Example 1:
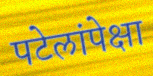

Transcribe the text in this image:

पटेलांपेक्षा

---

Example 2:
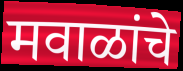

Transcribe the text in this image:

मवाळांचे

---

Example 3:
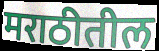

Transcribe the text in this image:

मराठीतील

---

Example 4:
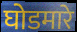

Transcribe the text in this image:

घोडमारे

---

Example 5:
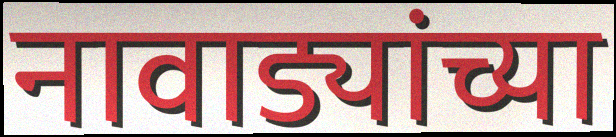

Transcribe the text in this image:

नावाड्यांच्या